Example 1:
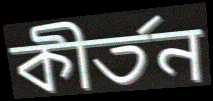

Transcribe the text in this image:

কীর্তন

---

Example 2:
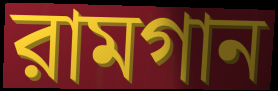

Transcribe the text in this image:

রামগান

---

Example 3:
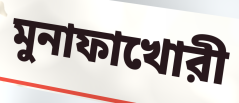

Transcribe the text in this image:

মুনাফাখোরী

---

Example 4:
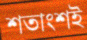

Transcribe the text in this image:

শতাংশই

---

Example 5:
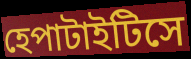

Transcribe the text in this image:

হেপাটাইটিসে